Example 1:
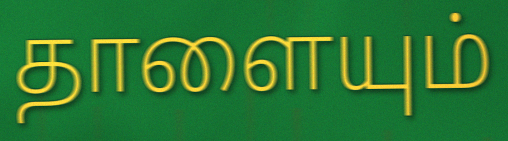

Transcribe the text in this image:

தாளையும்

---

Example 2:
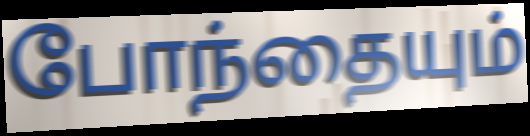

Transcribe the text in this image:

போந்தையும்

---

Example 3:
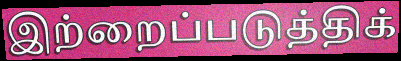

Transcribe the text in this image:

இற்றைப்படுத்திக்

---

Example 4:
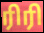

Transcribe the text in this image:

ரிரி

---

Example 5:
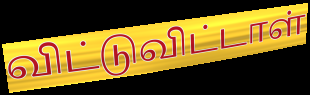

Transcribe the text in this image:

விட்டுவிட்டாள்